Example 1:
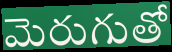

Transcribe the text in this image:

మెరుగుతో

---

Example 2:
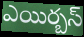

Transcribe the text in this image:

ఎయిర్బస్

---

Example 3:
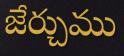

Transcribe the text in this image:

జేర్చుము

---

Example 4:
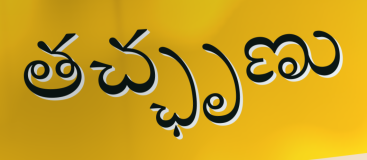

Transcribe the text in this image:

తచ్ఛృణు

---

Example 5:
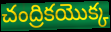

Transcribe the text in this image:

చంద్రికయొక్క